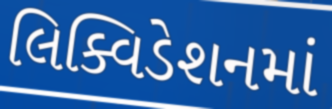
લિક્વિડેશનમાં